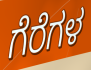
ಗೆರೆಗಳ